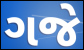
ગજે